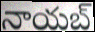
నాయబ్